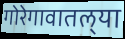
गोरेगावातल्या